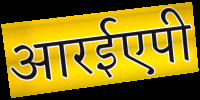
आरईएपी